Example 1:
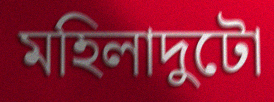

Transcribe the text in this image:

মহিলাদুটো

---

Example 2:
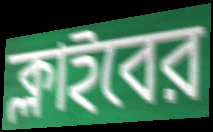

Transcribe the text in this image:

ক্লাইবের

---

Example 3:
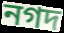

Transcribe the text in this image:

নগদ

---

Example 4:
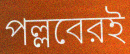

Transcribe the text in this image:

পল্লবেরই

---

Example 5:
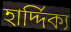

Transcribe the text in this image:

হার্দ্দিক্য